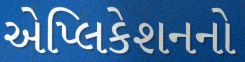
એપ્લિકેશનનો